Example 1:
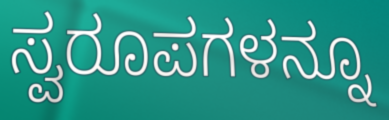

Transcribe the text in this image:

ಸ್ವರೂಪಗಳನ್ನೂ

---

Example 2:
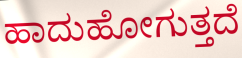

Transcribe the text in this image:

ಹಾದುಹೋಗುತ್ತದೆ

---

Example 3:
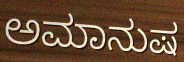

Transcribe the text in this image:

ಅಮಾನುಷ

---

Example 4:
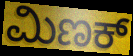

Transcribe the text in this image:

ಮಿಣಕ್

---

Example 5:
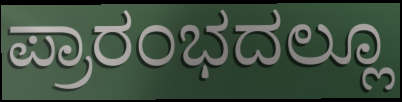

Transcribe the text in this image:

ಪ್ರಾರಂಭದಲ್ಲೂ